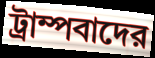
ট্রাম্পবাদের